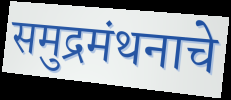
समुद्रमंथनाचे